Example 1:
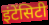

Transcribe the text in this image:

इंटेंसिटी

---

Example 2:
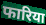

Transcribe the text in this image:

फारिया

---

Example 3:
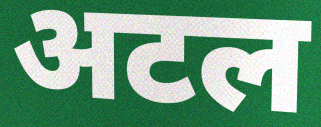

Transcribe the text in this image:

अटल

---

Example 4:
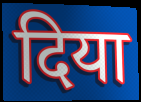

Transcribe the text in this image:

दिया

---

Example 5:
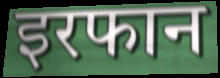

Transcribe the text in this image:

इरफान